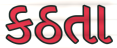
કઠતા